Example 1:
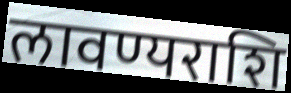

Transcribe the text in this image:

लावण्यराशि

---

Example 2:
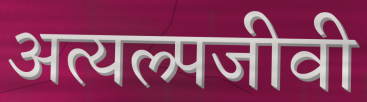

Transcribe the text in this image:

अत्यल्पजीवी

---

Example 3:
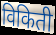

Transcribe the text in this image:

विकिती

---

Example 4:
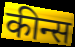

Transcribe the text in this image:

कीन्स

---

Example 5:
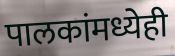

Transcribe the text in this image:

पालकांमध्येही